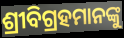
ଶ୍ରୀବିଗ୍ରହମାନଙ୍କୁ